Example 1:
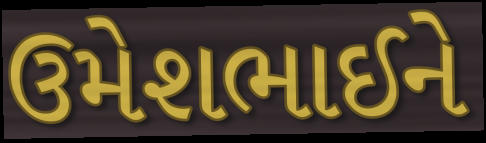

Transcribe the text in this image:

ઉમેશભાઈને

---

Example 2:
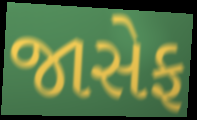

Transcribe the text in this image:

જાસેફ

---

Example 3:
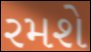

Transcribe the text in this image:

રમશે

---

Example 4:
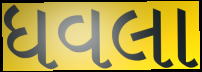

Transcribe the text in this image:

ધવલા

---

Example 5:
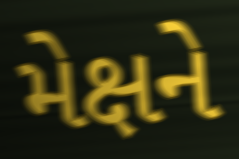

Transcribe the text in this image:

મેક્ષને